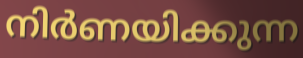
നിർണയിക്കുന്ന